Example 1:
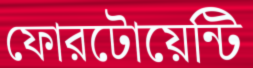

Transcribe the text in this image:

ফোরটোয়েন্টি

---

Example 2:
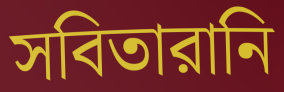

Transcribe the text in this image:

সবিতারানি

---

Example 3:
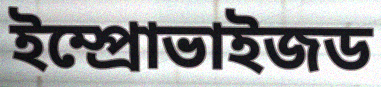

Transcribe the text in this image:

ইম্প্রোভাইজড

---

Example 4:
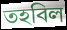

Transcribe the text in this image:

তহবিল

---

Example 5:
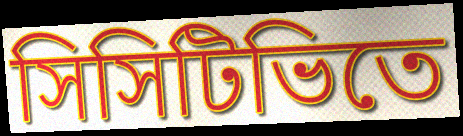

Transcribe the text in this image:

সিসিটিভিতে